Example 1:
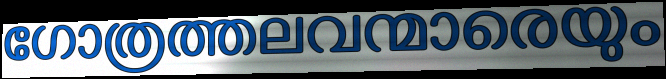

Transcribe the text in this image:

ഗോത്രത്തലവന്മാരെയും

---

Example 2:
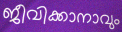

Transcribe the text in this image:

ജീവിക്കാനാവും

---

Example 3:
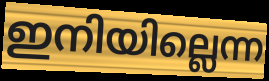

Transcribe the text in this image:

ഇനിയില്ലെന്ന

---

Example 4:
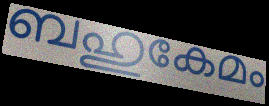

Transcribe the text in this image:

ബഹുകേമം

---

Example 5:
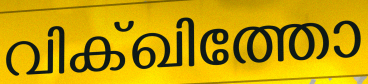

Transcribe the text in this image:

വിക്ഖിത്തോ